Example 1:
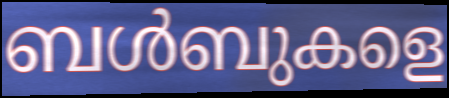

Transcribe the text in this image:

ബൾബുകളെ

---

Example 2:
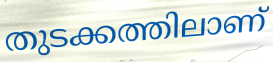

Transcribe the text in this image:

തുടക്കത്തിലാണ്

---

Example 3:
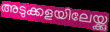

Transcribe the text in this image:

അടുക്കളയിലേയ്ക്കു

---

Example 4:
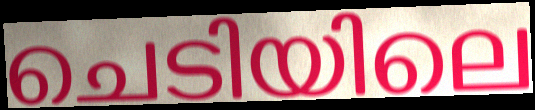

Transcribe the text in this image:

ചെടിയിലെ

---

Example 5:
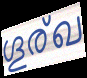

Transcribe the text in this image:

ഗൂര്ഖ